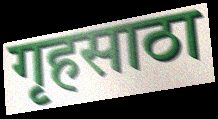
गृहसाठा